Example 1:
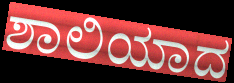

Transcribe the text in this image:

ಶಾಲಿಯಾದ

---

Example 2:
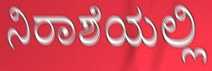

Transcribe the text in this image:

ನಿರಾಶೆಯಲ್ಲಿ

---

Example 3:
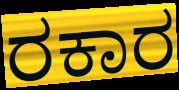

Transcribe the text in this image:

ರಕಾರ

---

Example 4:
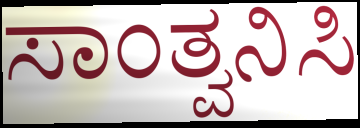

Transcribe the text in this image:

ಸಾಂತ್ವನಿಸಿ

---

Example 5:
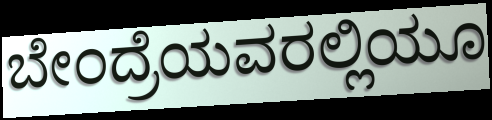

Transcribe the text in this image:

ಬೇಂದ್ರೆಯವರಲ್ಲಿಯೂ